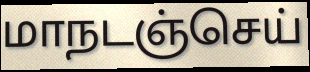
மாநடஞ்செய்